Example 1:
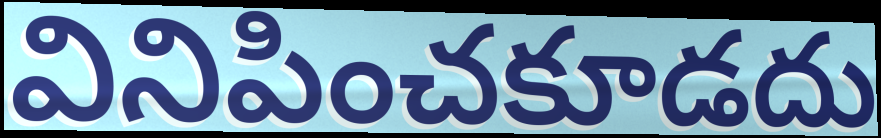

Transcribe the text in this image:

వినిపించకూడదు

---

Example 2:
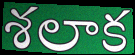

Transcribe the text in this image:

శలాక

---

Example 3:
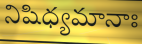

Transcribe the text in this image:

నిషిధ్యమానాః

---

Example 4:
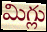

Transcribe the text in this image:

మిగ్లు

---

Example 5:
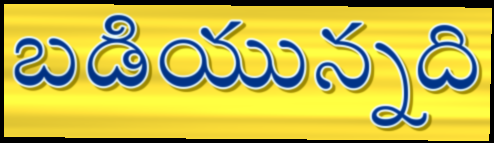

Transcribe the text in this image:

బడియున్నది